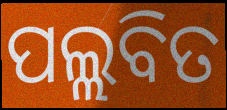
ପଲ୍ଲବିତ